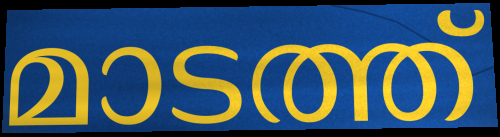
മാടത്ത്